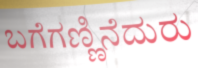
ಬಗೆಗಣ್ಣಿನೆದುರು